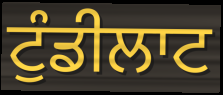
ਟੁੰਡੀਲਾਟ